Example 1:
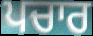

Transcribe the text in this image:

ਪਚਾਰ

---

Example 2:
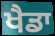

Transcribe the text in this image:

ਖੈਡਾ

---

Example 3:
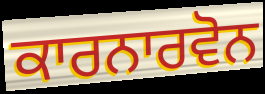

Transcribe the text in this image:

ਕਾਰਨਾਰਵੋਨ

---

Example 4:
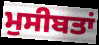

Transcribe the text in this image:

ਮੁਸੀਬਤਾਂ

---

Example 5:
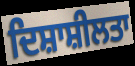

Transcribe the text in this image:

ਦਿਸ਼ਾਸ਼ੀਲਤਾ